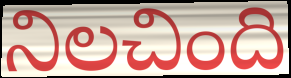
నిలచింది